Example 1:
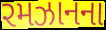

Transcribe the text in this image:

રમઝાનના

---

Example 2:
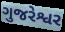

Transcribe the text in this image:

ગુજરેશ્વર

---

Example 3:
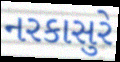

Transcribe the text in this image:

નરકાસુરે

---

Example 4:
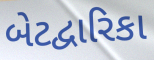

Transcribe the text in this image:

બેટદ્વારિકા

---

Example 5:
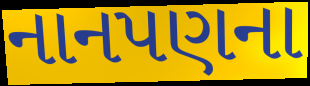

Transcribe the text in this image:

નાનપણના